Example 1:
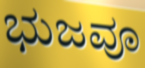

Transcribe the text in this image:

ಭುಜವೂ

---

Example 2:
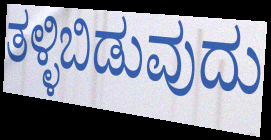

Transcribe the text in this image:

ತಳ್ಳಿಬಿಡುವುದು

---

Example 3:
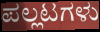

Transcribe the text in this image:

ಪಲ್ಲಟಗಳು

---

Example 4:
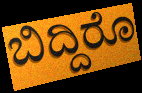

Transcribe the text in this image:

ಬಿದ್ದಿರೊ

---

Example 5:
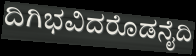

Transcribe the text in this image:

ದಿಗಿಭವಿದರೊಡನೈದಿ